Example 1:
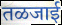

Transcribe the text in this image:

तळजाई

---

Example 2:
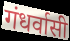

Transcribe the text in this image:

गंधर्वासी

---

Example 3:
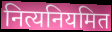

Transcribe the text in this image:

नित्यनियमित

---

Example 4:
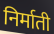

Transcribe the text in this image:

निर्माती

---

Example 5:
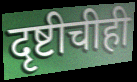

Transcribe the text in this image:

दृष्टीचीही